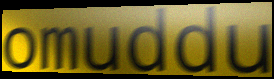
omuddu